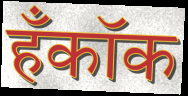
हँकॉक